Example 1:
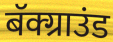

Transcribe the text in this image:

बॅक्ग्राउंड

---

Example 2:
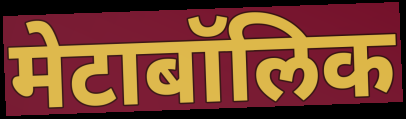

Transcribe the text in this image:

मेटाबॉलिक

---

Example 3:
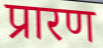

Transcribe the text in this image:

प्रारण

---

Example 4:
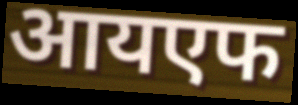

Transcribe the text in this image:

आयएफ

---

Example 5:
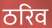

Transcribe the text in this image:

ठरिव